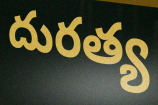
దురత్య